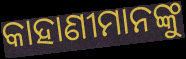
କାହାଣୀମାନଙ୍କୁ